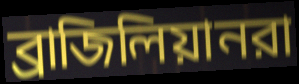
ব্রাজিলিয়ানরা